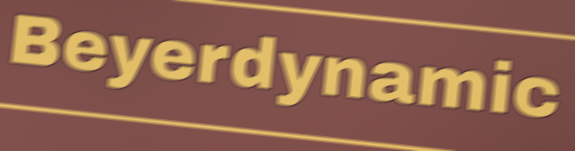
Beyerdynamic